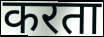
करता